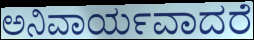
ಅನಿವಾರ್ಯವಾದರೆ